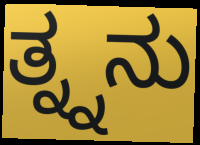
ತ್ನ್ನನು